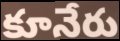
కూనేరు